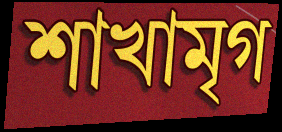
শাখামৃগ